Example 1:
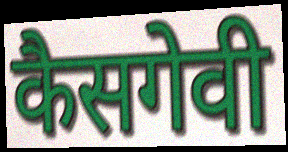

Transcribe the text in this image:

कैसगेवी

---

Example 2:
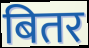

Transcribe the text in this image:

बितर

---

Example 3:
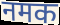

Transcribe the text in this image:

नमक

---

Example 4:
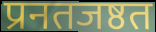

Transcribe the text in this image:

प्रनतजष्ठत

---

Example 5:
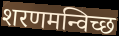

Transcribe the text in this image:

शरणमन्विच्छ